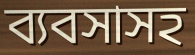
ব্যবসাসহ